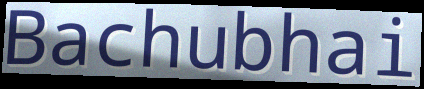
Bachubhai